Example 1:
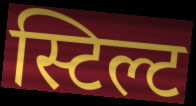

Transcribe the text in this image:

स्टिल्ट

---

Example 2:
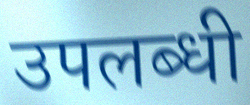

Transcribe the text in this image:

उपलब्धी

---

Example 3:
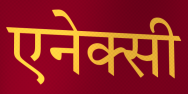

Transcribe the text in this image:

एनेक्‍सी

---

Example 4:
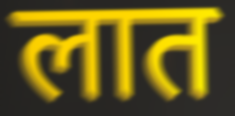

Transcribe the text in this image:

लात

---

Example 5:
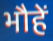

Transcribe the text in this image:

भौहें